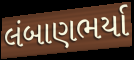
લંબાણભર્યા